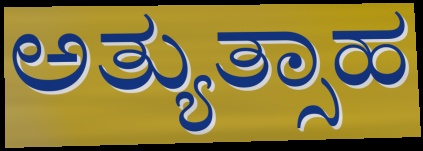
ಅತ್ಯುತ್ಸಾಹ